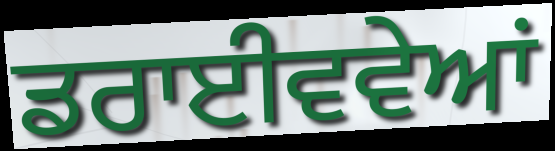
ਡਰਾਈਵਵੇਆਂ